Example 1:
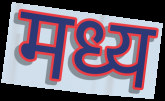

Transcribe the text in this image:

मध्य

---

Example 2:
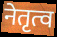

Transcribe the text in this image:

नेतृत्‍व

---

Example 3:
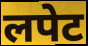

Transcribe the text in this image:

लपेट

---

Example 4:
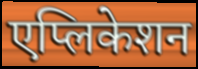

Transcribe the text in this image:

एप्लिकेशन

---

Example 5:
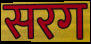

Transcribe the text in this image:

सरग